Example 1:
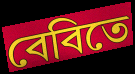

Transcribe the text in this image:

বেবিতে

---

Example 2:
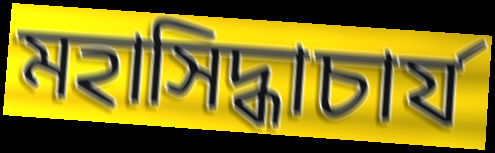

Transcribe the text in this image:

মহাসিদ্ধাচার্য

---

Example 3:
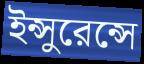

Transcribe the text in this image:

ইন্সুরেন্সে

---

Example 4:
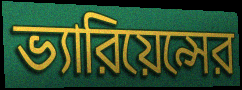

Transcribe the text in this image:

ভ্যারিয়েন্সের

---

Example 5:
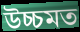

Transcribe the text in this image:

উচ্চমত